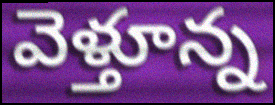
వెళ్తూన్న